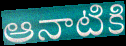
ఆనాటికి